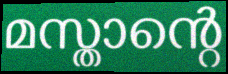
മസ്താന്റെ